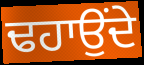
ਢਹਾਉਂਦੇ